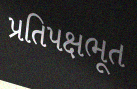
પ્રતિપક્ષભૂત